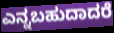
ಎನ್ನಬಹುದಾದರೆ